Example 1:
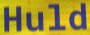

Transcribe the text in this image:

Huld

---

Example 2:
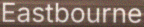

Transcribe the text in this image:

Eastbourne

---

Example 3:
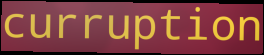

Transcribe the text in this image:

curruption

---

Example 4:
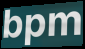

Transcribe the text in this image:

bpm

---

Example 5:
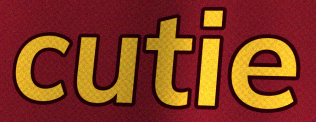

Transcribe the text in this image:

cutie